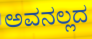
ಅವನಲ್ಲದ